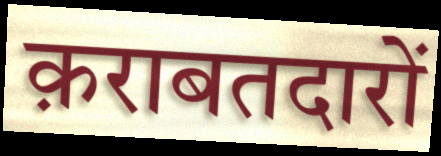
क़राबतदारों